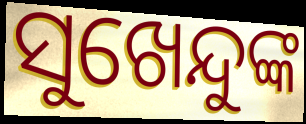
ସୁଖେନ୍ଦୁଙ୍କ